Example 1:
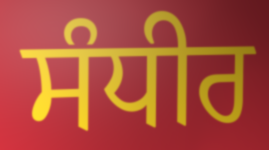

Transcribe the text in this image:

ਸੰਧੀਰ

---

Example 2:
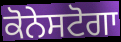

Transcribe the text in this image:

ਕੋਨੇਸਟੋਗਾ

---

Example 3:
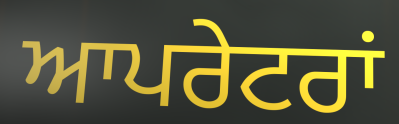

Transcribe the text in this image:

ਆਪਰੇਟਰਾਂ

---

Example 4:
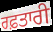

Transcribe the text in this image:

ਰਫ਼ਤਾਰੀ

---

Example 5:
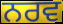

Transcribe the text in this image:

ਨਰਵ